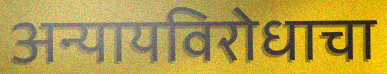
अन्यायविरोधाचा